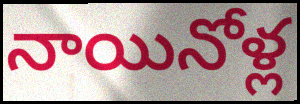
నాయినోళ్ల